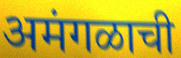
अमंगळाची